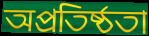
অপ্রতিষ্ঠতা